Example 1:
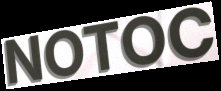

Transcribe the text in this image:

NOTOC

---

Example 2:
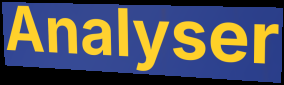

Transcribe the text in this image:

Analyser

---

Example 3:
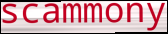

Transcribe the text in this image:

scammony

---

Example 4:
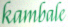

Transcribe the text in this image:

kambale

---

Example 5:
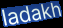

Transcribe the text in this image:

ladakh